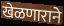
खेळणाराने